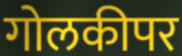
गोलकीपर